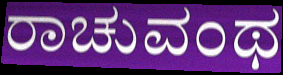
ರಾಚುವಂಥ